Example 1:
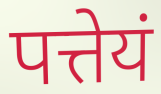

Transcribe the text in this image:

पत्तेयं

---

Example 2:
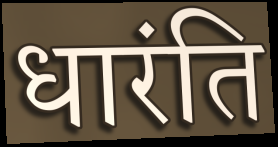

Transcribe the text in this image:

धारंति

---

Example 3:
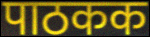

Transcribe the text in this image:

पाठकक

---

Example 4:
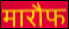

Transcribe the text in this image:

मारौफ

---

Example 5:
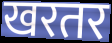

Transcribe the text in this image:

खरतर